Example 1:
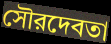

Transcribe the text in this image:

সৌরদেবতা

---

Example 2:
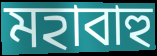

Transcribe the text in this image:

মহাবাহু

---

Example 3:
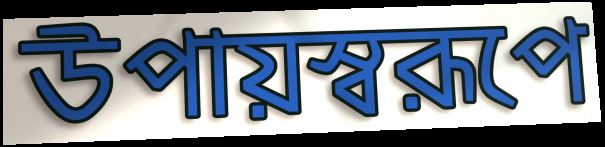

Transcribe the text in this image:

উপায়স্বরূপে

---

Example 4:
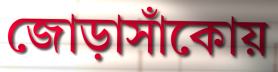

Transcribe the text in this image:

জোড়াসাঁকোয়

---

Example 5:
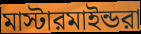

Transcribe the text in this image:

মাস্টারমাইন্ডরা